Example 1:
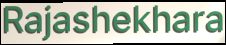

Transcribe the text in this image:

Rajashekhara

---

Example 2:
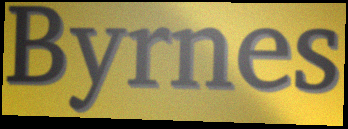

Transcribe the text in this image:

Byrnes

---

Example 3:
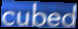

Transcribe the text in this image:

cubed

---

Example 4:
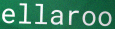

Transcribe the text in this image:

ellaroo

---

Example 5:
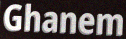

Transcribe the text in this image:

Ghanem